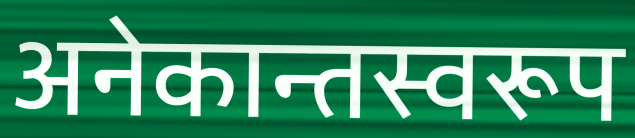
अनेकान्तस्वरूप